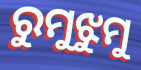
ରୁମୁଝୁମୁ